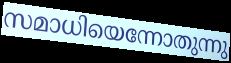
സമാധിയെന്നോതുന്നു